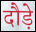
दौड़े